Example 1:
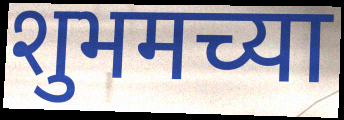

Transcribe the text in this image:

शुभमच्या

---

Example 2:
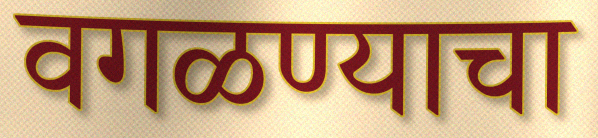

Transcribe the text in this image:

वगळण्याचा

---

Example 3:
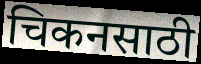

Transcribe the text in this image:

चिकनसाठी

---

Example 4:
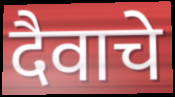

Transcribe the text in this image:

दैवाचे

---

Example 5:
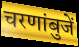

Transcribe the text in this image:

चरणांबुजें